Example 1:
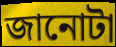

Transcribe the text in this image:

জানোটা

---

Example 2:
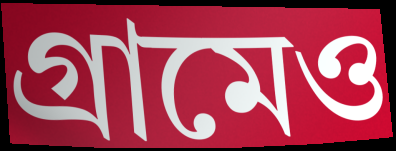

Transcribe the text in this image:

গ্রামেও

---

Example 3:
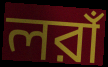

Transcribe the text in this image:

লরাঁ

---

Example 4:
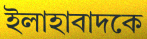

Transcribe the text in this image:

ইলাহাবাদকে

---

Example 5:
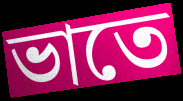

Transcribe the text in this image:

ভাতে